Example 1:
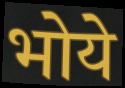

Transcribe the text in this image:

भोये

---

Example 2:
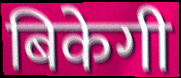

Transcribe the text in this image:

बिकेगी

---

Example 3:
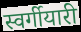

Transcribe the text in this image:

स्वर्गीयारी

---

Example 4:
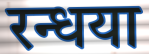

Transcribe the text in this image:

रन्धया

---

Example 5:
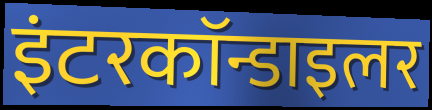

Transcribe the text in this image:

इंटरकॉन्डाइलर